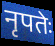
नृपतेः